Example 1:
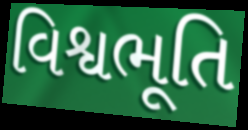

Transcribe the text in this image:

વિશ્વભૂતિ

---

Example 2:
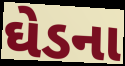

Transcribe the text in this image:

ઘેડના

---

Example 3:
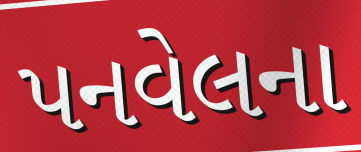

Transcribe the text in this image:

પનવેલના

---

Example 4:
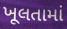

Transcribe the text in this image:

ખૂલતામાં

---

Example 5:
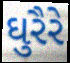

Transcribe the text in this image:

ઘુરૈરે